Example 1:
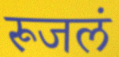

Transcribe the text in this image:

रूजलं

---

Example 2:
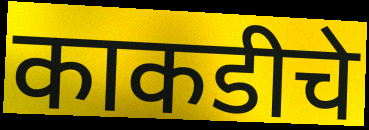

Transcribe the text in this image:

काकडीचे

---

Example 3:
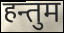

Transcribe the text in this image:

हन्तुम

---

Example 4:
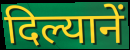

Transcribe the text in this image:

दिल्यानें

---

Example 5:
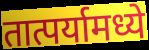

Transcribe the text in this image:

तात्पर्यामध्ये